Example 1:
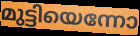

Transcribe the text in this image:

മുട്ടിയെന്നോ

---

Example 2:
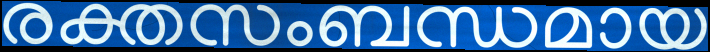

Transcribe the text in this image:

രക്തസംബന്ധമായ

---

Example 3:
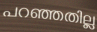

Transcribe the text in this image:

പറഞ്ഞതില്ല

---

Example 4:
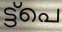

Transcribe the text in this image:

ട്ട്പെ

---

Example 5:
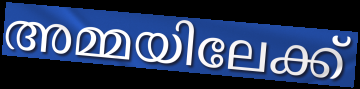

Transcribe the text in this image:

അമ്മയിലേക്ക്